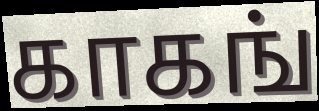
காகங்